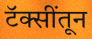
टॅक्सींतून